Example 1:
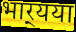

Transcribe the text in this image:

भार्यया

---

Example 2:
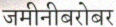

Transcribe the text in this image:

जमीनीबरोबर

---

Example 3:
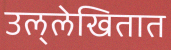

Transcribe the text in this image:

उल्लेखितात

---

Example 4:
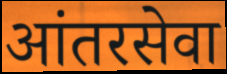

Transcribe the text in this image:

आंतरसेवा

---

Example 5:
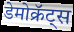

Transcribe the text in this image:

डेमोक्रॅट्स